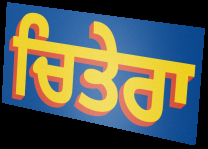
ਚਿਤੇਰਾ